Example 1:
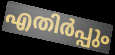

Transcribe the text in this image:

എതിർപ്പും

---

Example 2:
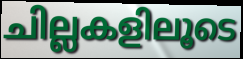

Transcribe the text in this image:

ചില്ലകളിലൂടെ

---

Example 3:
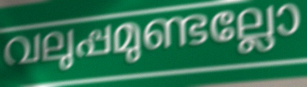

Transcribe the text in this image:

വലുപ്പമുണ്ടല്ലോ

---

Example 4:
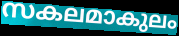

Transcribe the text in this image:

സകലമാകുലം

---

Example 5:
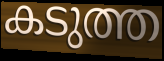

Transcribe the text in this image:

കടുത്ത